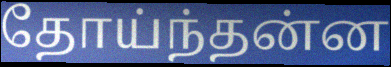
தோய்ந்தன்ன